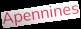
Apennines